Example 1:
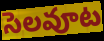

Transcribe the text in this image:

సెలవూట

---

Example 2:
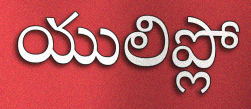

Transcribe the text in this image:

యులిప్లో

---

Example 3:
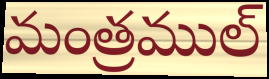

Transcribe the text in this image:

మంత్రముల్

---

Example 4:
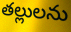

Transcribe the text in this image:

తల్లులను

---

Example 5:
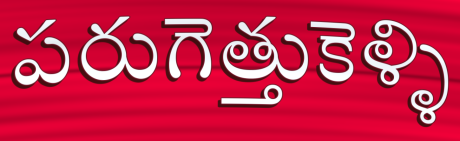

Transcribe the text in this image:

పరుగెత్తుకెళ్ళి